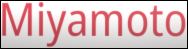
Miyamoto